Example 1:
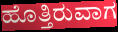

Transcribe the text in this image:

ಹೊತ್ತಿರುವಾಗ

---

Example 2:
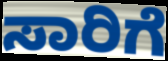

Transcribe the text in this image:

ಸಾರಿಗೆ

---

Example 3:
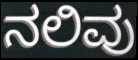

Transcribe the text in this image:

ನಲಿವು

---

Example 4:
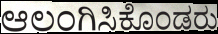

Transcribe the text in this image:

ಆಲಂಗಿಸಿಕೊಂಡರು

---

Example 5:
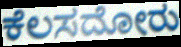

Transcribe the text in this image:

ಕೆಲಸದೋರು